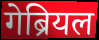
गेब्रियल